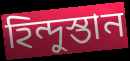
হিন্দুস্তান